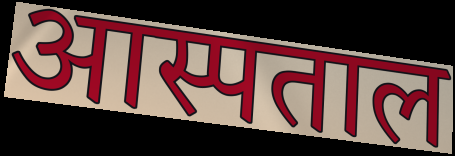
आस्पताल